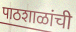
पाठशाळांची